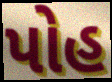
પોહ